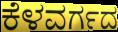
ಕೆಳವರ್ಗದ